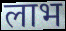
लाभ